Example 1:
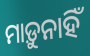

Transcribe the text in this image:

ମାଡ଼ୁନାହିଁ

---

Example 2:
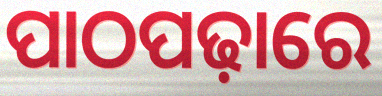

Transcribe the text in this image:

ପାଠପଢ଼ାରେ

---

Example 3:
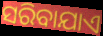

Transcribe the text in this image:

ସରିବାଯାଏ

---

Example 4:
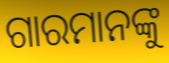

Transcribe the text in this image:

ଗାରମାନଙ୍କୁ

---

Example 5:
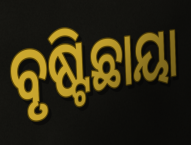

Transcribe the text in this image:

ବୃଷ୍ଟିଛାୟା